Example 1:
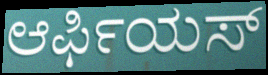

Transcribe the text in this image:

ಆರ್ಫಿಯಸ್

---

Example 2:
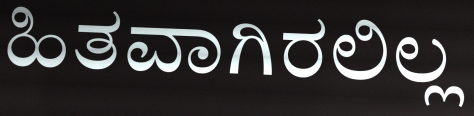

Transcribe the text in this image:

ಹಿತವಾಗಿರಲಿಲ್ಲ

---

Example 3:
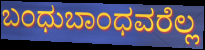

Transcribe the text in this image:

ಬಂಧುಬಾಂಧವರೆಲ್ಲ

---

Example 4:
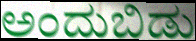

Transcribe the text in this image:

ಅಂದುಬಿಡು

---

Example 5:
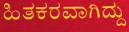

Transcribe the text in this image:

ಹಿತಕರವಾಗಿದ್ದು